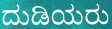
ದುಡಿಯರು